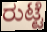
ರುಟ್ಟೆ